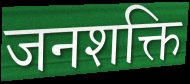
जनशक्ति